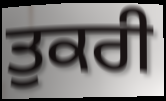
ਤੁਕਰੀ